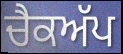
ਚੈਕਅੱਪ